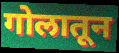
गोलातून